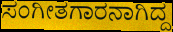
ಸಂಗೀತಗಾರನಾಗಿದ್ದ